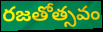
రజతోత్సవం